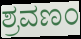
ಶ್ರವಣಂ